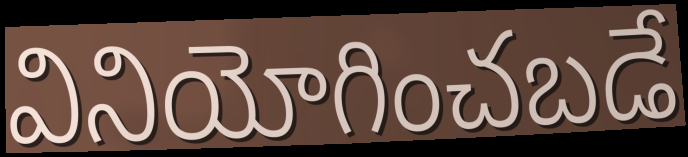
వినియోగించబడే